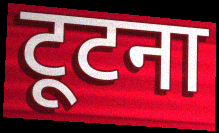
टूटना